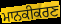
ਮਾਨਕੀਕਰਣ